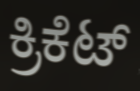
ಕ್ರಿಕೆಟ್